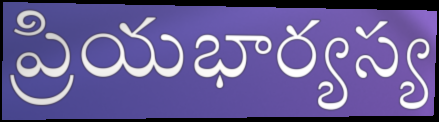
ప్రియభార్యస్య